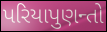
પરિયાપુણન્તો